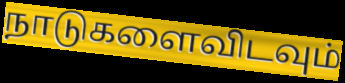
நாடுகளைவிடவும்